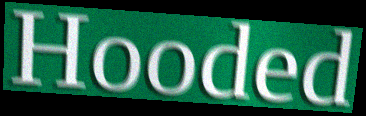
Hooded